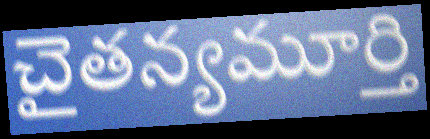
చైతన్యమూర్తి